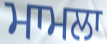
ਮਾਮਲਾ